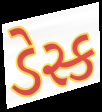
ડેસ્ક